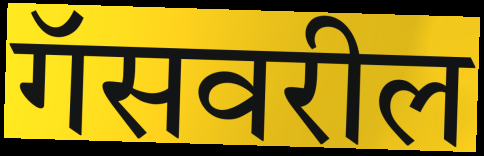
गॅसवरील